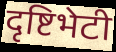
दृष्टिभेटी